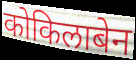
कोकिलाबेन